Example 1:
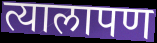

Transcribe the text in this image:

त्यालापण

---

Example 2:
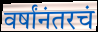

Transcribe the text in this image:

वर्षांनंतरचं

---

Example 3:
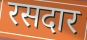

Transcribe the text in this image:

रसदार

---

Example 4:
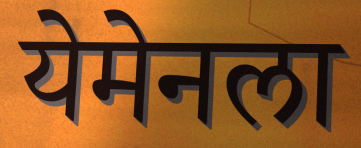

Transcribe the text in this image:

येमेनला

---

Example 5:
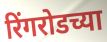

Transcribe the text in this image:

रिंगरोडच्या